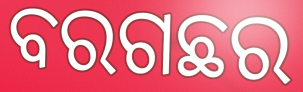
ବରଗଛର